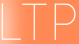
LTP